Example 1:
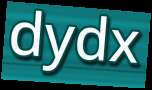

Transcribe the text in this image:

dydx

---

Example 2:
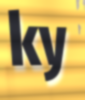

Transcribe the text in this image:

ky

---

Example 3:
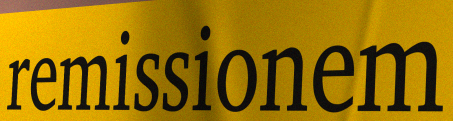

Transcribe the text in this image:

remissionem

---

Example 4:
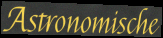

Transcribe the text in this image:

Astronomische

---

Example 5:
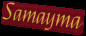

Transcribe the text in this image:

Samayma